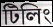
টিলিং